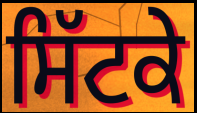
ਸਿੱਟਕੇ